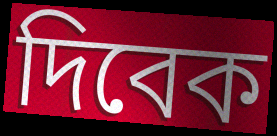
দিবেক